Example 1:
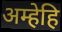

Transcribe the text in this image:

अम्हेहि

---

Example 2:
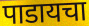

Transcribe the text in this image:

पाडायचा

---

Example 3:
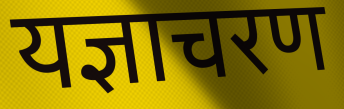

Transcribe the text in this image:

यज्ञाचरण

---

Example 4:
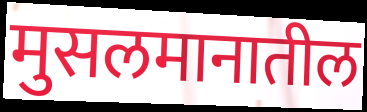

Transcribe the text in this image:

मुसलमानातील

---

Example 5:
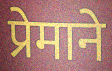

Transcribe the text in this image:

प्रेमाने